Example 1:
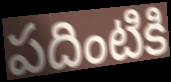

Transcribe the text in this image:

పదింటికి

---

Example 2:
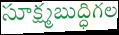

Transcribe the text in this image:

సూక్ష్మబుద్ధిగల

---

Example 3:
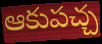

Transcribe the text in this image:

ఆకుపచ్చ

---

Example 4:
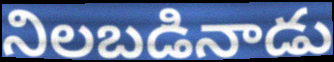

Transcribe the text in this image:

నిలబడినాడు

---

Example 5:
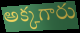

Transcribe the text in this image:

అక్కగారు